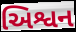
અિશ્વન